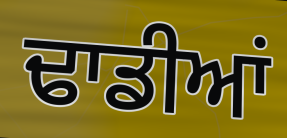
ਢਾਡੀਆਂ